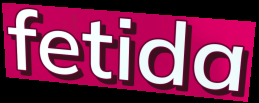
fetida